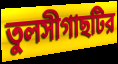
তুলসীগাছটির